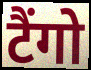
टैंगो